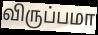
விருப்பமா